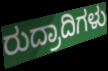
ರುದ್ರಾದಿಗಳು